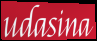
udasina